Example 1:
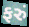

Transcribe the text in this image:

ફરું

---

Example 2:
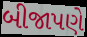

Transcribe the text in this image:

બીજાપણે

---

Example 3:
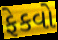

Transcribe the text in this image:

ફેકવો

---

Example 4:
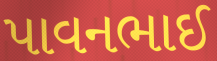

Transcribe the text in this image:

પાવનભાઈ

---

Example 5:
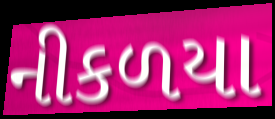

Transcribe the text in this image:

નીકળયા